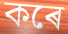
কৰে